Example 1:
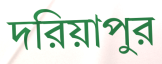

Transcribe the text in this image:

দরিয়াপুর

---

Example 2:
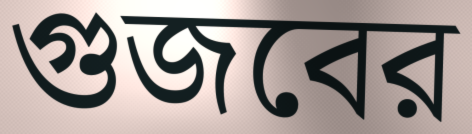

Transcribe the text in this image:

গুজবের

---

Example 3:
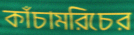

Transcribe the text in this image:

কাঁচামরিচের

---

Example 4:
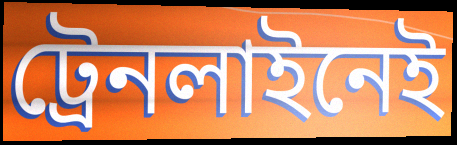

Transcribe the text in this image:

ট্রেনলাইনেই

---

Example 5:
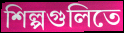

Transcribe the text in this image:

শিল্পগুলিতে